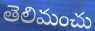
తెలిమంచు